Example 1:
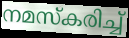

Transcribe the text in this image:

നമസ്കരിച്ച്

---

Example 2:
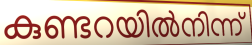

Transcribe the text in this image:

കുണ്ടറയിൽനിന്ന്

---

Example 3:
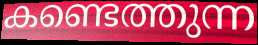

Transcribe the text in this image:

കണ്ടെത്തുന്ന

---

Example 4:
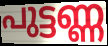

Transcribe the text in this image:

പുട്ടണ്ണ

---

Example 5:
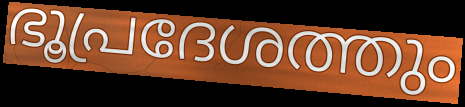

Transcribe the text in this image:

ഭൂപ്രദേശത്തും